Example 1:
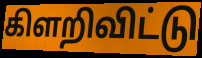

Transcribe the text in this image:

கிளறிவிட்டு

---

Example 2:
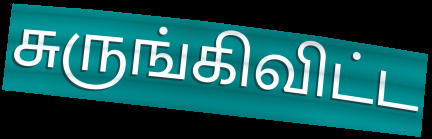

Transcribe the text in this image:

சுருங்கிவிட்ட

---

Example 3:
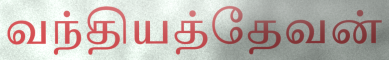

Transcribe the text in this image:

வந்தியத்தேவன்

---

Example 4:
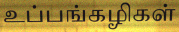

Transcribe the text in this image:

உப்பங்கழிகள்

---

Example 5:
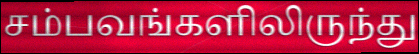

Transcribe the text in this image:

சம்பவங்களிலிருந்து